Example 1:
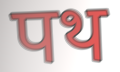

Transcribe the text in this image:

पथ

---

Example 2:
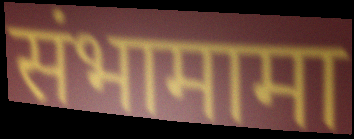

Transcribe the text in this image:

संभामामा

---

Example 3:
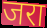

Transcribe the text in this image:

जरा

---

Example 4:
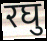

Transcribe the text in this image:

रघु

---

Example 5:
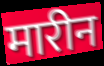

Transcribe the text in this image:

मारीन